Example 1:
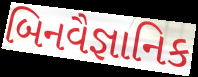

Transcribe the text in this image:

બિનવૈજ્ઞાનિક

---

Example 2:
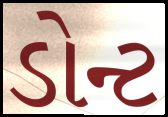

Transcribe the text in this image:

ડોન્ટ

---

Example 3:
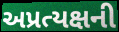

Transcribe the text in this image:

અપ્રત્યક્ષની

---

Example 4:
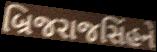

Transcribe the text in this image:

બ્રિજરાજસિંહને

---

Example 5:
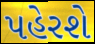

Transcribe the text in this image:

પહેરશે